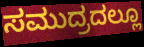
ಸಮುದ್ರದಲ್ಲೂ